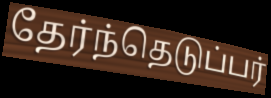
தேர்ந்தெடுப்பர்